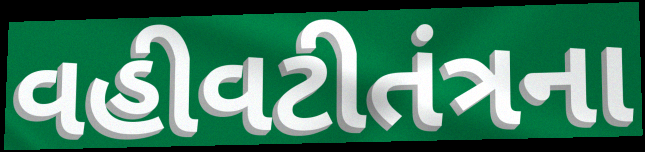
વહીવટીતંત્રના